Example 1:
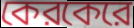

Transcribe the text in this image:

কেরকেরে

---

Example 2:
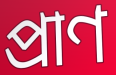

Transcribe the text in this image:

প্রাণ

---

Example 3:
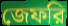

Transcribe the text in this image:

জেফরি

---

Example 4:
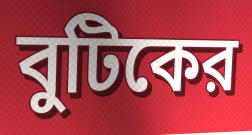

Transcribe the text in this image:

বুটিকের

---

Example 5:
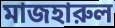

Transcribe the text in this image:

মাজহারুল